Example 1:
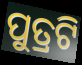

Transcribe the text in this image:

ପୁତ୍ରଟି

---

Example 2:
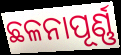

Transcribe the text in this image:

ଛଳନାପୂର୍ଣ୍ଣ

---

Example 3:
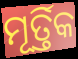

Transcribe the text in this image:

ମୂର୍ତ୍ତିକ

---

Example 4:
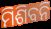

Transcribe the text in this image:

ମିଶିବନି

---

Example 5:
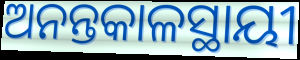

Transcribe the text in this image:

ଅନନ୍ତକାଳସ୍ଥାୟୀ